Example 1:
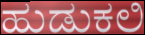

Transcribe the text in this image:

ಹುಡುಕಲಿ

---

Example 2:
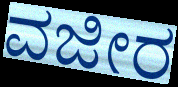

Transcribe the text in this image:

ವಜೀರ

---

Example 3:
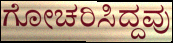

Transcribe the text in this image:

ಗೋಚರಿಸಿದ್ದವು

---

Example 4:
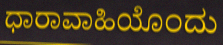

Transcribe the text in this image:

ಧಾರಾವಾಹಿಯೊಂದು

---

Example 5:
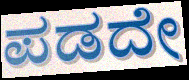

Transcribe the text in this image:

ಪಡದೇ